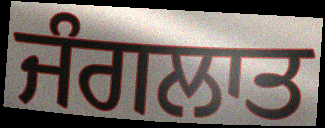
ਜੰਗਲਾਤ